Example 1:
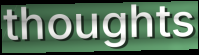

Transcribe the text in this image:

thoughts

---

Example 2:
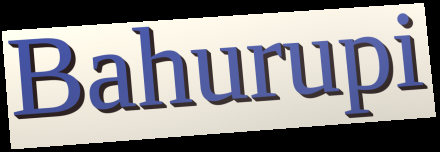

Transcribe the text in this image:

Bahurupi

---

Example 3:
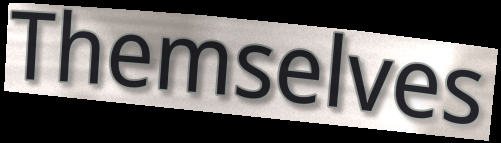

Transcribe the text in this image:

Themselves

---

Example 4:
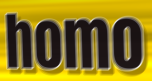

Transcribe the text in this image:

homo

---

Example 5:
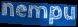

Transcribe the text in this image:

nempu